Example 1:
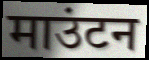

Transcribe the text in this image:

माउंटन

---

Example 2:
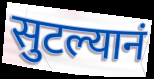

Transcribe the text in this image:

सुटल्यानं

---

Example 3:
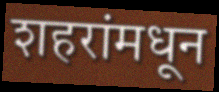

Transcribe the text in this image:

शहरांमधून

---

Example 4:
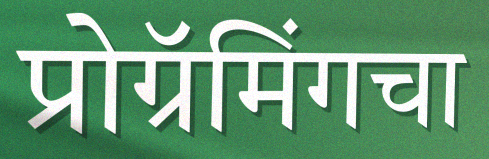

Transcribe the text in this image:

प्रोग्रॅमिंगचा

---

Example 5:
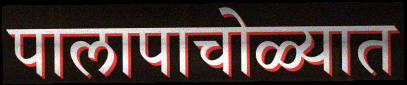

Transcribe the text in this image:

पालापाचोळ्यात